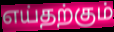
எய்தற்கும்